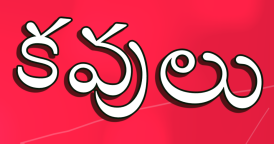
కవులు